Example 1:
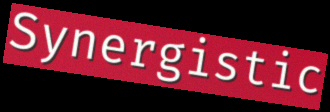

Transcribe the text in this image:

Synergistic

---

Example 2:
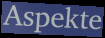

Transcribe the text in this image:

Aspekte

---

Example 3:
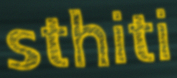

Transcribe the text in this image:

sthiti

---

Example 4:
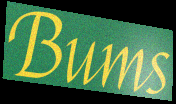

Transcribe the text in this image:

Bums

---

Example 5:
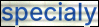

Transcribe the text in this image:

specialy